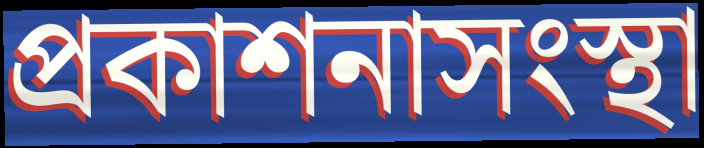
প্রকাশনাসংস্থা